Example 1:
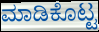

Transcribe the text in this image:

ಮಾಡಿಕೊಟ್ಟ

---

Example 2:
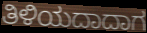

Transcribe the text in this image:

ತಿಳಿಯದಾದಾಗ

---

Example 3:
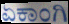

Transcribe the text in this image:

ಏಕಾಂಗಿ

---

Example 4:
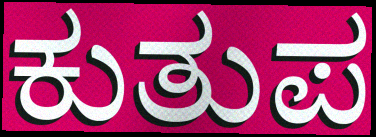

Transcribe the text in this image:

ಕುತುಪ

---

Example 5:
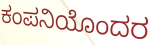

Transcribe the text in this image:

ಕಂಪನಿಯೊಂದರ